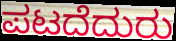
ಪಟದೆದುರು